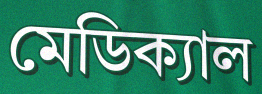
মেডিক্যাল